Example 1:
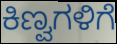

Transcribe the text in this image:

ಕಿಣ್ವಗಳಿಗೆ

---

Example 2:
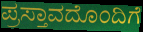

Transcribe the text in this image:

ಪ್ರಸ್ತಾವದೊಂದಿಗೆ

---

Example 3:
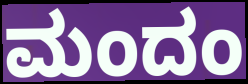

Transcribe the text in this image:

ಮಂದಂ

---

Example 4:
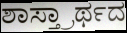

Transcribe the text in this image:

ಶಾಸ್ತ್ರಾರ್ಥದ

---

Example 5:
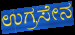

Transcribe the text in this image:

ಉಗ್ರಸೇನ